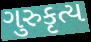
ગુરુકૃત્ય